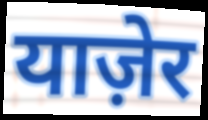
याज़ेर